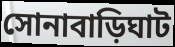
সোনাবাড়িঘাট